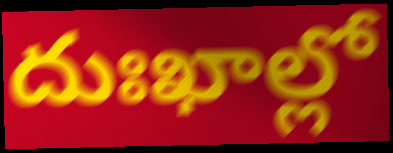
దుఃఖాల్లో